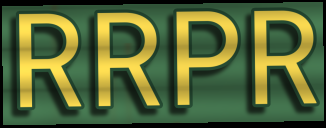
RRPR